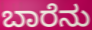
ಬಾರೆನು